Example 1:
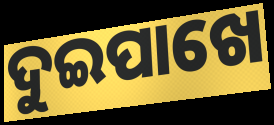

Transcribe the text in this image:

ଦୁଇପାଖେ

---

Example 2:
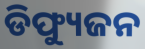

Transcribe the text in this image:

ଡିଫ୍ୟୁଜନ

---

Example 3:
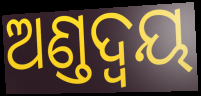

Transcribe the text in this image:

ଅଣ୍ଡଦ୍ୱୟ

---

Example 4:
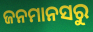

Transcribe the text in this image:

ଜନମାନସରୁ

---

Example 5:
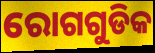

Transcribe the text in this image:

ରୋଗଗୁଡିକ